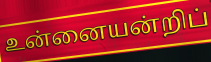
உன்னையன்றிப்